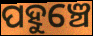
ପହୁଞ୍ଚେ